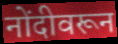
नोंदीवरून